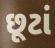
છૂટાં